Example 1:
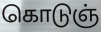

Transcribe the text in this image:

கொடுஞ்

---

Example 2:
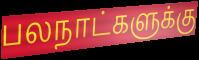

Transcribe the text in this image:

பலநாட்களுக்கு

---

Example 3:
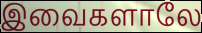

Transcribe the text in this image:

இவைகளாலே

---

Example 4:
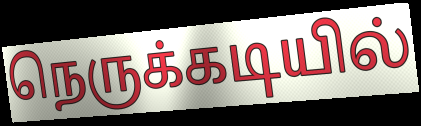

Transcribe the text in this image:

நெருக்கடியில்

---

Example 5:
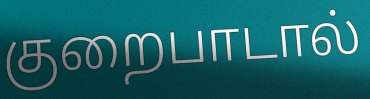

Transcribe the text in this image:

குறைபாடால்